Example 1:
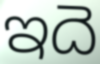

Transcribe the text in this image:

ఇదె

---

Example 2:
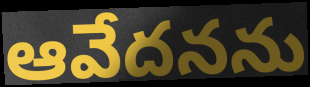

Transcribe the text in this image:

ఆవేదనను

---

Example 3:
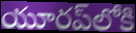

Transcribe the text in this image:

యూరప్‌లోకి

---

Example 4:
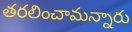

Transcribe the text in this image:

తరలించామన్నారు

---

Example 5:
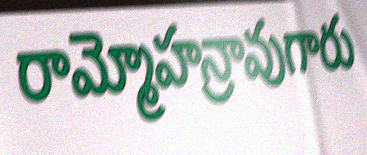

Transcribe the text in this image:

రామ్మోహన్రావుగారు